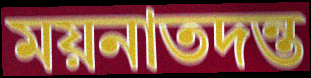
ময়নাতদন্ত